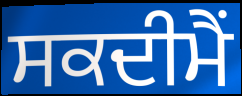
ਸਕਦੀਮੈਂ